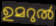
ഉമറുൽ